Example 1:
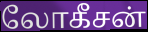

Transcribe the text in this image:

லோகீசன்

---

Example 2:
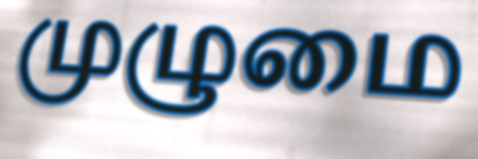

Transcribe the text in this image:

முழுமை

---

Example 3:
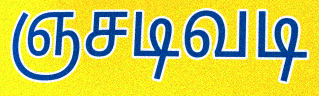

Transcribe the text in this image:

ஞசடிவடி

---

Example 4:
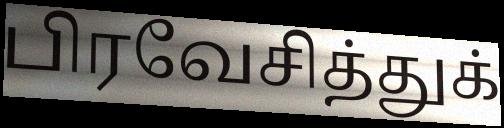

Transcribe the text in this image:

பிரவேசித்துக்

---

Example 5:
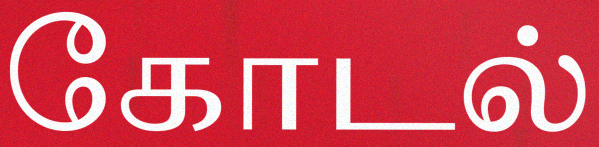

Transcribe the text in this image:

கோடல்